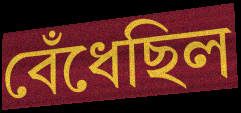
বেঁধেছিল